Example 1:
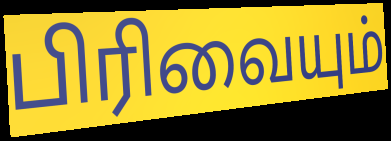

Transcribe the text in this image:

பிரிவையும்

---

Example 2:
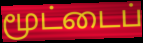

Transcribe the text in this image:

மூட்டைப்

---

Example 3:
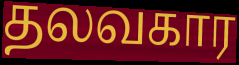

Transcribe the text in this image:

தலவகார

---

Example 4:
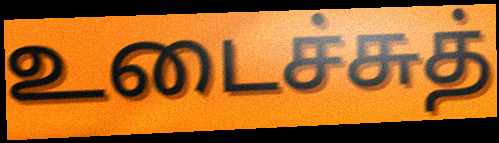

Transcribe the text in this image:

உடைச்சுத்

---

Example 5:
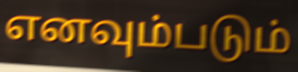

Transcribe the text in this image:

எனவும்படும்